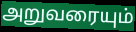
அறுவரையும்